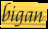
bigan